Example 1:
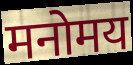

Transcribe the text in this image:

मनोमय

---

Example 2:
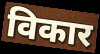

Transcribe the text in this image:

विकार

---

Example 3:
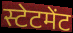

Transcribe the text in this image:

स्टेटमेंट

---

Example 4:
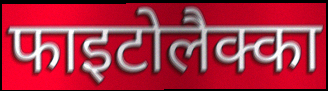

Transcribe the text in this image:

फाइटोलैक्का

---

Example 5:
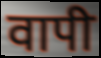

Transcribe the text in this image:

वापी